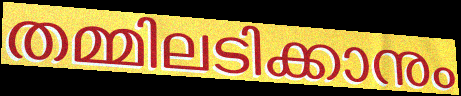
തമ്മിലടിക്കാനും